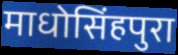
माधोसिंहपुरा